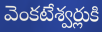
వెంకటేశ్వర్లుకి